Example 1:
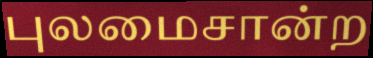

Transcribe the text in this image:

புலமைசான்ற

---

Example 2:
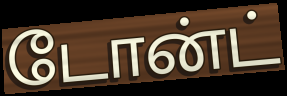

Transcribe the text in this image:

டோன்ட்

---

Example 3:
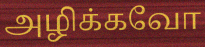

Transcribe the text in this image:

அழிக்கவோ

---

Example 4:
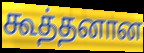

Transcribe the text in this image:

கூத்தனான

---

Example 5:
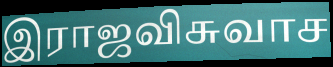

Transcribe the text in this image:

இராஜவிசுவாச